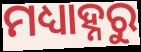
ମଧ୍ୟାହ୍ନରୁ